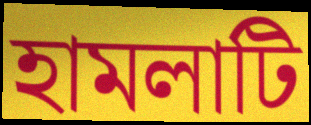
হামলাটি